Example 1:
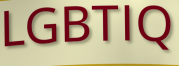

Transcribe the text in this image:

LGBTIQ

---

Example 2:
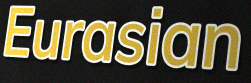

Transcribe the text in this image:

Eurasian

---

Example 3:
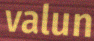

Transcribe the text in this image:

valun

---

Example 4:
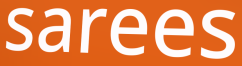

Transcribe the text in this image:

sarees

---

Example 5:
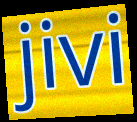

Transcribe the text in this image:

jivi